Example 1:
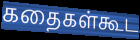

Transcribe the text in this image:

கதைகள்கூட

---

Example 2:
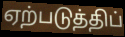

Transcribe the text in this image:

ஏற்படுத்திப்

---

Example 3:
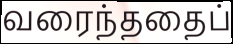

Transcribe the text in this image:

வரைந்ததைப்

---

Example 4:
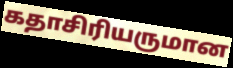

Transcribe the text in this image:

கதாசிரியருமான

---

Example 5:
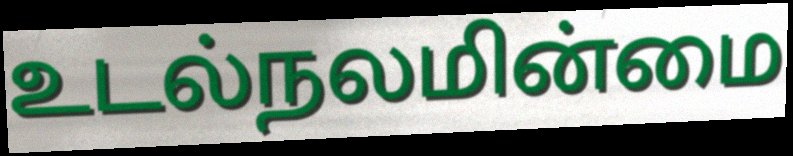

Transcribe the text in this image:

உடல்நலமின்மை